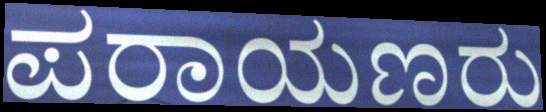
ಪರಾಯಣರು